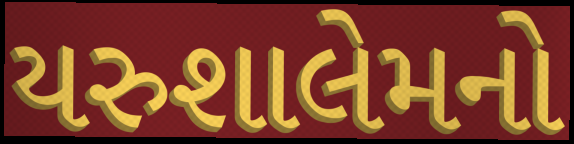
યરુશાલેમનો